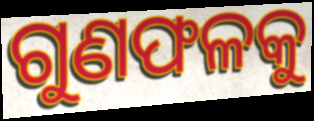
ଗୁଣଫଳକୁ